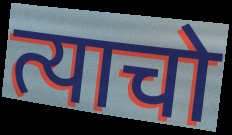
त्याचो